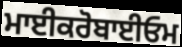
ਮਾਈਕਰੋਬਾਈਓਮ